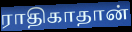
ராதிகாதான்